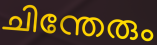
ചിന്തേരും